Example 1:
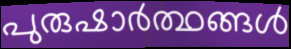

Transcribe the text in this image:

പുരുഷാർത്ഥങ്ങൾ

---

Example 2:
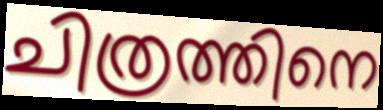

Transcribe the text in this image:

ചിത്രത്തിനെ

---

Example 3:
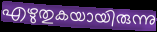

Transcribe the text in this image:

എഴുതുകയായിരുന്നു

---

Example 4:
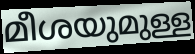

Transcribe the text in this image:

മീശയുമുള്ള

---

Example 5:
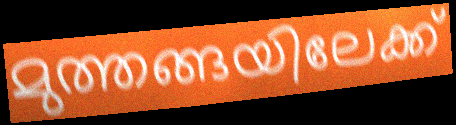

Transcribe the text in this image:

മുത്തങ്ങയിലേക്ക്